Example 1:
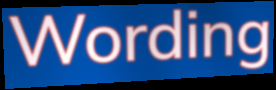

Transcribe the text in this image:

Wording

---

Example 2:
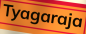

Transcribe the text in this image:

Tyagaraja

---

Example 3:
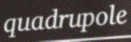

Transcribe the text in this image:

quadrupole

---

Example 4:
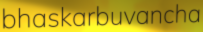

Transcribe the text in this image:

bhaskarbuvancha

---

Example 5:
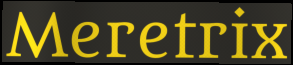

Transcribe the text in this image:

Meretrix